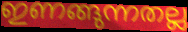
ഇണങ്ങുന്നതല്ല